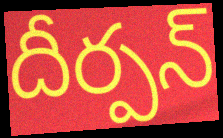
దీర్పన్